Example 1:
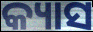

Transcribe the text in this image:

କ୍ୟାସ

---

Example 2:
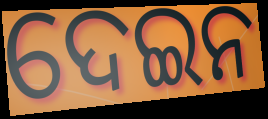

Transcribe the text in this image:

ଦେଇନ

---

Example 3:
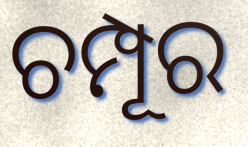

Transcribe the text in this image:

ଚମ୍ପୂର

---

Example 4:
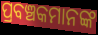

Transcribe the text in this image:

ପ୍ରବଞ୍ଚକମାନଙ୍କ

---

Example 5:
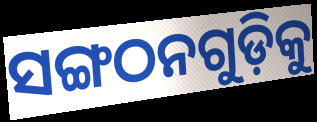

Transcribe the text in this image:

ସଙ୍ଗଠନଗୁଡ଼ିକୁ